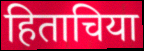
हिताचिया